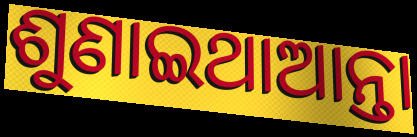
ଶୁଣାଇଥାଆନ୍ତା